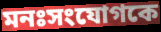
মনঃসংযোগকে